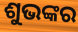
ଶୁଭଙ୍କର